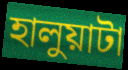
হালুয়াটা